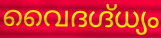
വൈദഗ്ദ്ധ്യം